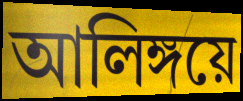
আলিঙ্গয়ে